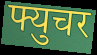
फ्युचर